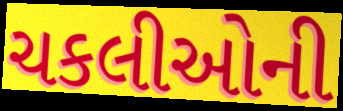
ચકલીઓની